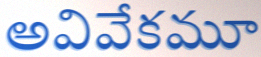
అవివేకమూ